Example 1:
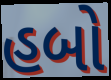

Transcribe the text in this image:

હબો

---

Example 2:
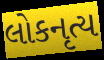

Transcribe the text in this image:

લોકનૃત્ય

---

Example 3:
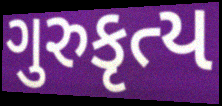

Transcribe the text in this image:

ગુરુકૃત્ય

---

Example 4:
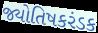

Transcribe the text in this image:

જ્યોતિષકરંડક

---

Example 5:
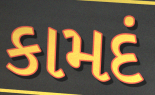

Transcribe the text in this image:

કામદં